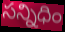
సన్నిధిం